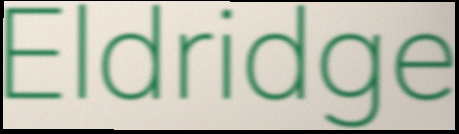
Eldridge